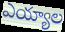
ఎయ్యాల